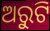
ଅରୁଟି